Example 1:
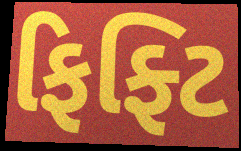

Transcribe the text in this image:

ફિફ્ટિ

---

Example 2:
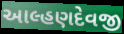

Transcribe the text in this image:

આલ્હણદેવજી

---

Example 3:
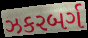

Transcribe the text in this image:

ઝકરબર્ગ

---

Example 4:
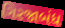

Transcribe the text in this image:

ગિરજાબંધ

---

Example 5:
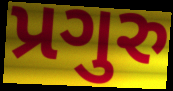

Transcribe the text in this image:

પ્રગુરુ